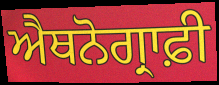
ਐਥਨੋਗ੍ਰਾਫ਼ੀ